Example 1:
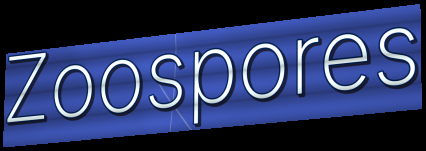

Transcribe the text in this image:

Zoospores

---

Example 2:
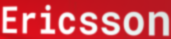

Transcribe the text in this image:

Ericsson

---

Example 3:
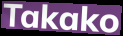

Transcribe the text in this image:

Takako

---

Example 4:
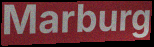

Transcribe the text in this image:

Marburg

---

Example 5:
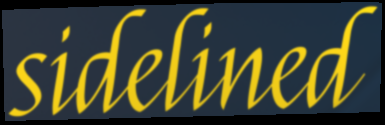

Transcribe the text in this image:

sidelined